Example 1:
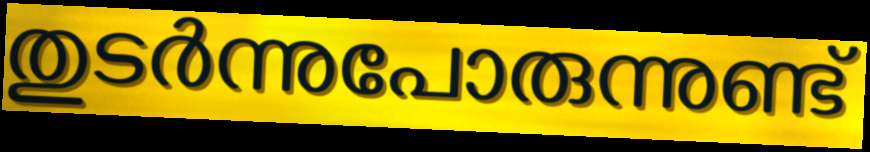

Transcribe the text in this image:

തുടർന്നുപോരുന്നുണ്ട്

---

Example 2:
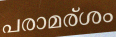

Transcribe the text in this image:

പരാമര്ശം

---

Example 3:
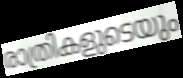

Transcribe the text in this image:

രാത്രികളുടെയും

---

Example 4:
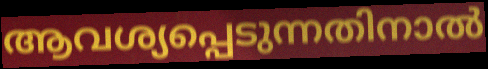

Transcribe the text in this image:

ആവശ്യപ്പെടുന്നതിനാൽ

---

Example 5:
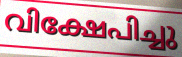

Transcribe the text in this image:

വിക്ഷേപിച്ചു